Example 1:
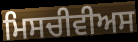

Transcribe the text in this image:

ਮਿਸਚੀਵੀਅਸ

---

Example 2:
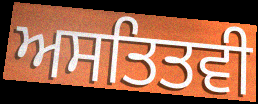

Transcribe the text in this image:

ਅਸਤਿਤਵੀ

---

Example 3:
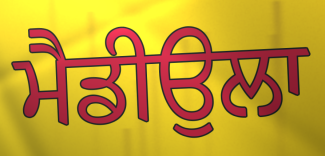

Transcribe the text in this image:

ਮੈਡੀਉਲਾ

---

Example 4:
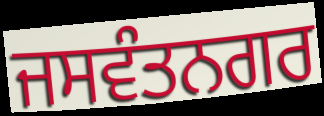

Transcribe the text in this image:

ਜਸਵੰਤਨਗਰ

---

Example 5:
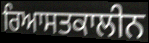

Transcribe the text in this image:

ਰਿਆਸਤਕਾਲੀਨ